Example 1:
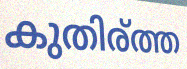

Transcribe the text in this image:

കുതിര്ത്ത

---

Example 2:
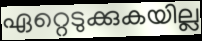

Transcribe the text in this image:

ഏറ്റെടുക്കുകയില്ല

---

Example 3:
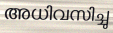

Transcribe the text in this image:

അധിവസിച്ചു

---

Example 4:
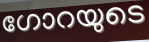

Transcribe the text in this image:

ഗോറയുടെ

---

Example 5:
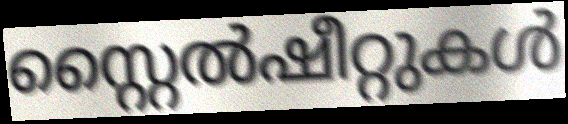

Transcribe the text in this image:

സ്റ്റൈൽഷീറ്റുകൾ